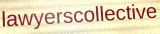
lawyerscollective